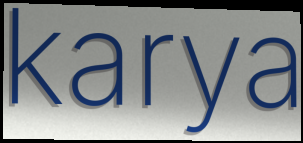
karya